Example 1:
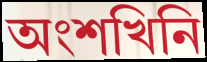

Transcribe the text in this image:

অংশখিনি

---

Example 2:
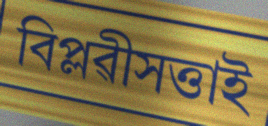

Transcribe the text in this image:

বিপ্লৱীসত্তাই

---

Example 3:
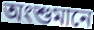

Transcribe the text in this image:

অংশুমানে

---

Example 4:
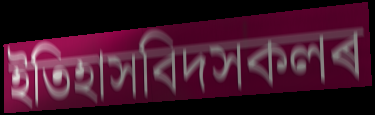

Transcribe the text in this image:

ইতিহাসবিদসকলৰ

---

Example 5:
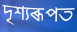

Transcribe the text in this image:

দৃশ্যৰূপত